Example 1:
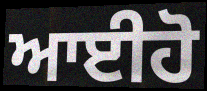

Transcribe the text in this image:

ਆਈਹੋ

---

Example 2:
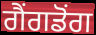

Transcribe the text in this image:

ਗੈਂਗਡੋਂਗ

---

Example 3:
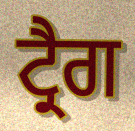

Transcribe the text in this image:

ਟ੍ਰੈਗ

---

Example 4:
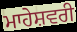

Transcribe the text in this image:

ਮਾਹੇਸ਼ਵਰੀ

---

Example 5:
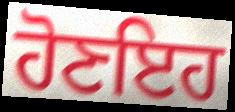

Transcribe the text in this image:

ਹੋਣਇਹ